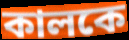
কালকে